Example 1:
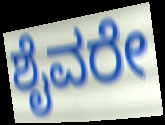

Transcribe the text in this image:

ಶೈವರೇ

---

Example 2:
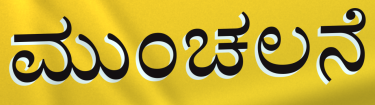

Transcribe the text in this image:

ಮುಂಚಲನೆ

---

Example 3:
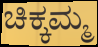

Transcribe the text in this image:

ಚಿಕ್ಕಮ್ಮ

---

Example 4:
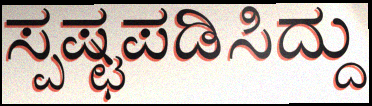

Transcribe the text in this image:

ಸ್ಪಷ್ಟಪಡಿಸಿದ್ದು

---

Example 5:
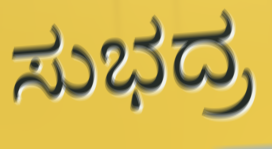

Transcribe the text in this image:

ಸುಭದ್ರ